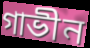
গাভীন